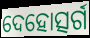
ଦେହୋତ୍ସର୍ଗ